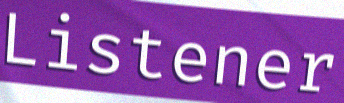
Listener